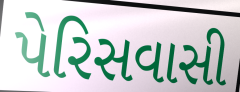
પેરિસવાસી